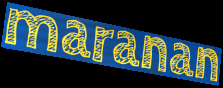
maranan